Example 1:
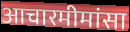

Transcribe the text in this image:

आचारमीमांसा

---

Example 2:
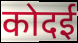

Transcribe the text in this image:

कोदई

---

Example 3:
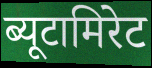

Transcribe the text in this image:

ब्यूटामिरेट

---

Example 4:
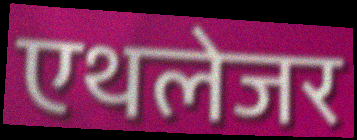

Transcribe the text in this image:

एथलेजर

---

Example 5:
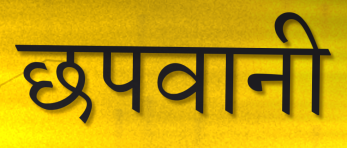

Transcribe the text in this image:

छपवानी